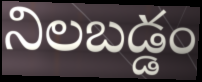
నిలబడ్డం